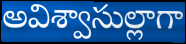
అవిశ్వాసుల్లాగా